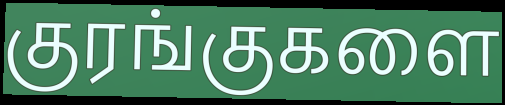
குரங்குகளை